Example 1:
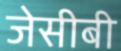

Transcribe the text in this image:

जेसीबी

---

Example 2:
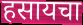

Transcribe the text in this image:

हसायचा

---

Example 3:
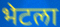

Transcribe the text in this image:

भेटला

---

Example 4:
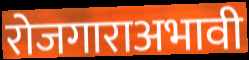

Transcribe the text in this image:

रोजगाराअभावी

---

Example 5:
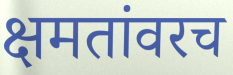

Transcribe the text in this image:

क्षमतांवरच